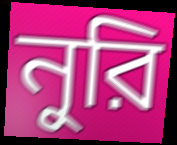
নুরি